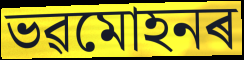
ভৱমোহনৰ